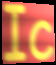
Ic